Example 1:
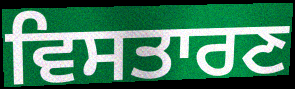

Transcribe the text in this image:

ਵਿਸਤਾਰਣ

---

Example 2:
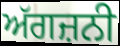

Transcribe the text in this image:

ਅੱਗਜ਼ਨੀ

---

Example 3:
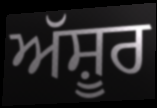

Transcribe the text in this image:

ਅੱਸ਼ੂਰ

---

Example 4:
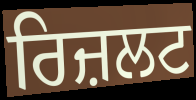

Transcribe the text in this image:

ਰਿਜ਼ਲਟ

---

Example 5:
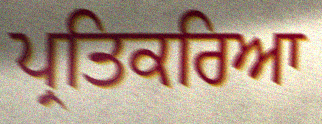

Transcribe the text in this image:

ਪ੍ਰਤਿਕਰਿਆ